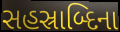
સહસ્રાબ્દિના